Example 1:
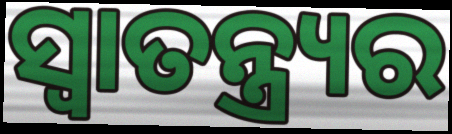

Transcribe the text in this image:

ସ୍ଵାତନ୍ତ୍ର୍ୟର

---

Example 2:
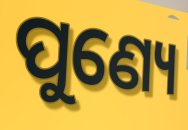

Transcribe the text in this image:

ପୁଣ୍ୟେ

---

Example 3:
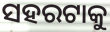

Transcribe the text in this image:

ସହରଟାକୁ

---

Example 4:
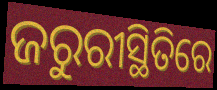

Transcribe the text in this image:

ଜରୁରୀସ୍ଥିତିରେ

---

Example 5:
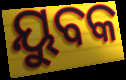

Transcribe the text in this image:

ୟୁବକ